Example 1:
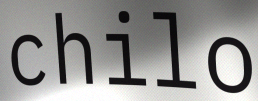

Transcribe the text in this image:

chilo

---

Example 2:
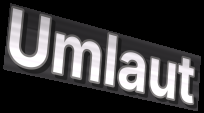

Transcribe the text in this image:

Umlaut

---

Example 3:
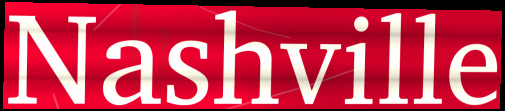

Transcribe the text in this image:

Nashville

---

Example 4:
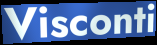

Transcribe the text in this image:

Visconti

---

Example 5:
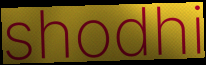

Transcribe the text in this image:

shodhi